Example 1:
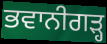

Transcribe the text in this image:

ਭਵਾਨੀਗੜ੍ਹ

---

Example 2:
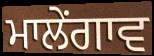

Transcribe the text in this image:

ਮਾਲੇਂਗਾਵ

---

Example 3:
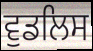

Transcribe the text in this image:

ਵੁਡਲਿਸ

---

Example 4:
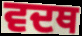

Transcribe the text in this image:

ਵਦਥ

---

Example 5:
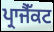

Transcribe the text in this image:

ਪ੍ਰਾਜੈੱਕਟ